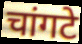
चांगटे